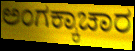
ಅಂಗಕ್ಕಾಚಾರ